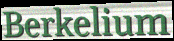
Berkelium